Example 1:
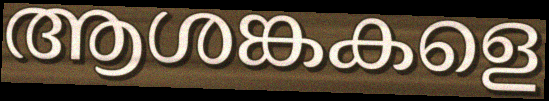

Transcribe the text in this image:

ആശങ്കകളെ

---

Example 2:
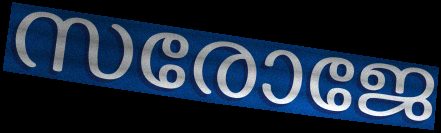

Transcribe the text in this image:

സരോജേ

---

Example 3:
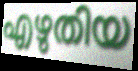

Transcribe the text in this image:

എഴുതിയ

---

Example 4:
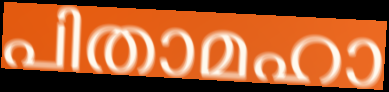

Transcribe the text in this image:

പിതാമഹാ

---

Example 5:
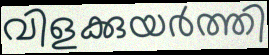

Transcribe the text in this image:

വിളക്കുയർത്തി